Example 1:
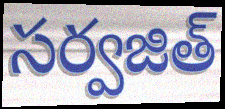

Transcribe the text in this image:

సర్వజిత్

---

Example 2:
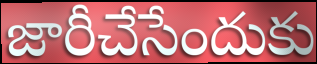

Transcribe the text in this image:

జారీచేసేందుకు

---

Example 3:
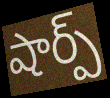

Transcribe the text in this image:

షార్ప్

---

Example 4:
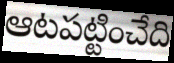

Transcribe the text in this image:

ఆటపట్టించేది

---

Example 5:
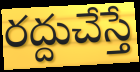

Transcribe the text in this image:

రద్దుచేస్తే